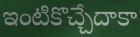
ఇంటికొచ్చేదాకా